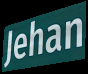
Jehan